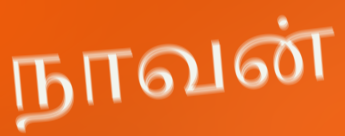
நாவன்